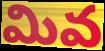
మివ